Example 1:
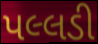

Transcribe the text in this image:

પલ્લડી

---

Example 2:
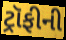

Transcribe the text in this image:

ટ્રૉફીની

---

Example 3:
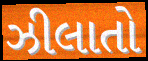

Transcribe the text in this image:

ઝીલાતો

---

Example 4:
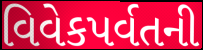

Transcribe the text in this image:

વિવેકપર્વતની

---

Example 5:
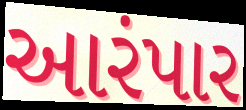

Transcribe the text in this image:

આરંપાર